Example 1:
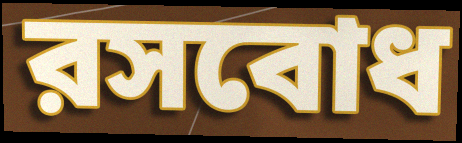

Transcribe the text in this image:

রসবোধ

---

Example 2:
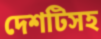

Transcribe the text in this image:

দেশটিসহ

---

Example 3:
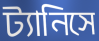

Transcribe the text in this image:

ট্যানিসে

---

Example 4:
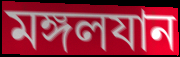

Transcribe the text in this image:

মঙ্গলযান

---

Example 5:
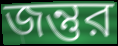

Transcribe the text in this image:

জন্তুর